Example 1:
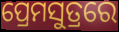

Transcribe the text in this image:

ପ୍ରେମସୁତ୍ରରେ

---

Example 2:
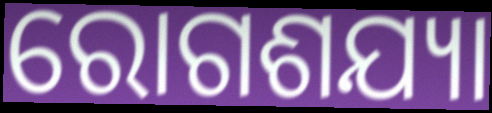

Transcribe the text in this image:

ରୋଗଶଯ୍ୟା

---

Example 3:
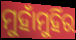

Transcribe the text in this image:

ମୁହାଁମୁହିଁର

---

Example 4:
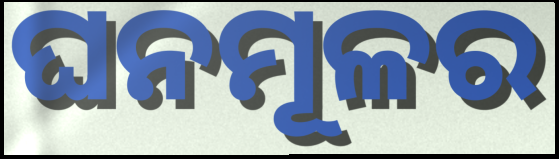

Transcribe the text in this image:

ଘନମୂଳର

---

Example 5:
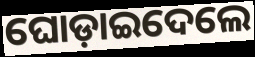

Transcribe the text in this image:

ଘୋଡ଼ାଇଦେଲେ